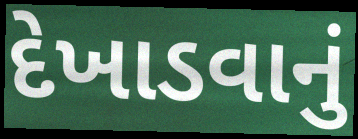
દેખાડવાનું